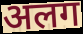
अलग